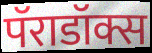
पॅराडॉक्स